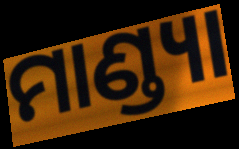
ମାଣ୍ଡ୍ୟା